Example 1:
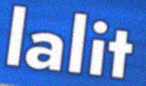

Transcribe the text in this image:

lalit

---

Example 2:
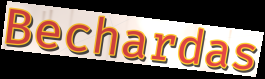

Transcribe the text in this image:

Bechardas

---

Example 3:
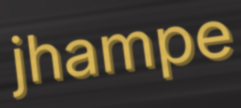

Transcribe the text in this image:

jhampe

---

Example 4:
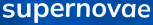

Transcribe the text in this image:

supernovae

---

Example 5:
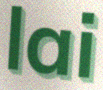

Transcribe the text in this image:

lai